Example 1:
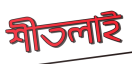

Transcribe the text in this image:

শীতলাই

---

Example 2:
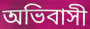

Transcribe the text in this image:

অভিবাসী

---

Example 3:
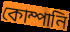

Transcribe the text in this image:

কোম্পানি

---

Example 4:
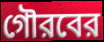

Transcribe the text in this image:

গৌরবের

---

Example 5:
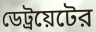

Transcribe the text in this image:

ডেট্রয়েটের